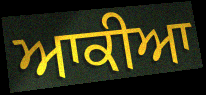
ਆਕੀਆ